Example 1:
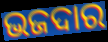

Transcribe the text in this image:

ଭଜଦାର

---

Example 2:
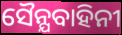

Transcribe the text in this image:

ସୈନ୍ଯବାହିନୀ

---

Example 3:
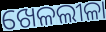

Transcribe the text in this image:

ଖେଳଲୀଳା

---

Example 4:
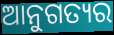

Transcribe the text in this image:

ଆନୁଗତ୍ୟର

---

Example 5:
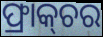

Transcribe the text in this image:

ଫ୍ରାକ୍‌ଚର